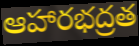
ఆహారభద్రత